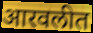
आरवलीत